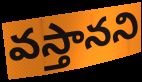
వస్తానని